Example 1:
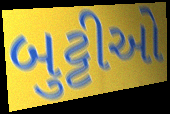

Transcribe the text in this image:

બુટ્ટીઓ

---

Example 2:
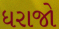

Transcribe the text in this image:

ધરાજો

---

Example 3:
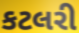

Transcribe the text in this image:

કટલરી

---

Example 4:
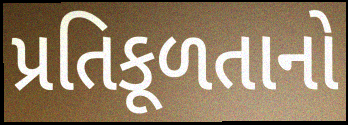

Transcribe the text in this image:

પ્રતિકૂળતાનો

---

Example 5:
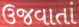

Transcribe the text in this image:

ઉજવાતાં